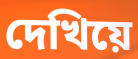
দেখিয়ে